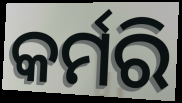
କର୍ମରି